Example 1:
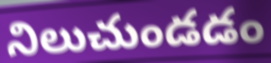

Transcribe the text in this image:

నిలుచుండడం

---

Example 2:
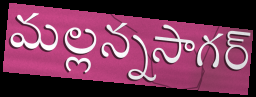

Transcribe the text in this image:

మల్లన్నసాగర్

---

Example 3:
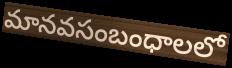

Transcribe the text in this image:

మానవసంబంధాలలో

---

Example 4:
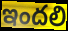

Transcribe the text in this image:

ఇందలి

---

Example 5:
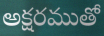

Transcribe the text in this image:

అక్షరముతో